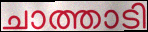
ചാത്താടി